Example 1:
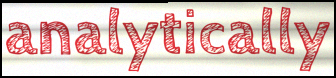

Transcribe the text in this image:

analytically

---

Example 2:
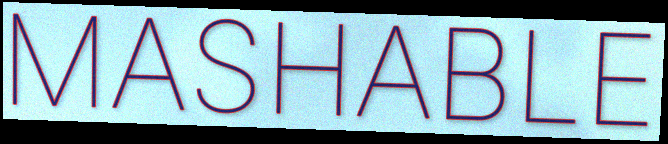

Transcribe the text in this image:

MASHABLE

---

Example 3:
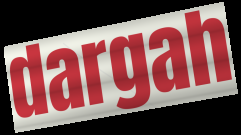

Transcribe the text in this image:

dargah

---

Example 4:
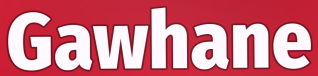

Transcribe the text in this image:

Gawhane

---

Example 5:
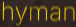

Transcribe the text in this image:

hyman